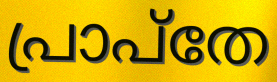
പ്രാപ്തേ